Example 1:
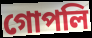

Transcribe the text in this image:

গোপলি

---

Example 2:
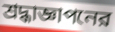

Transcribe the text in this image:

শ্রদ্ধাজ্ঞাপনের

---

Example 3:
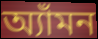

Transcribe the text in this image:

অ্যাঁমন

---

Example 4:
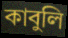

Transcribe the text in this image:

কাবুলি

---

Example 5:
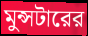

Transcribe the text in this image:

মুন্সটারের